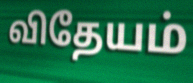
விதேயம்